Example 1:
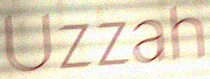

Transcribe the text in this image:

Uzzah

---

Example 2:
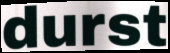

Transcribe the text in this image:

durst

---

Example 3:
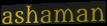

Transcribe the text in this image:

ashaman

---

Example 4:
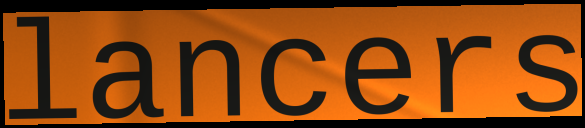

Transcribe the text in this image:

lancers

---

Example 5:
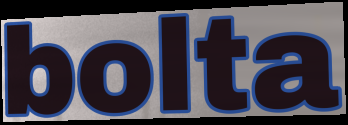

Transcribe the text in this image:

bolta